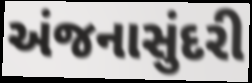
અંજનાસુંદરી